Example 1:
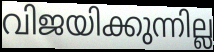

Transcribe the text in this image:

വിജയിക്കുന്നില്ല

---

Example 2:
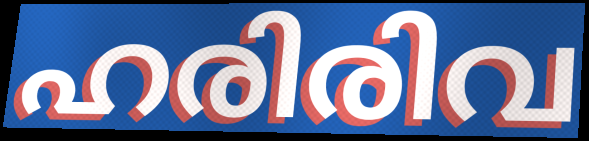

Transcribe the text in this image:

ഹരിരിവ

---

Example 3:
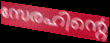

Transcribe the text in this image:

സേരഹിന്റെ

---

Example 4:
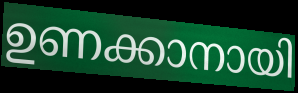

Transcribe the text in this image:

ഉണക്കാനായി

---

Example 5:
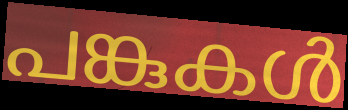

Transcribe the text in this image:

പങ്കുകൾ